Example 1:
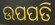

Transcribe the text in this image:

ଉପପତି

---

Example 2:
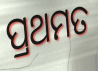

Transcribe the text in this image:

ପ୍ରଥମତ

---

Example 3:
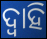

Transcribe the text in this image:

ଦ୍ଵାହି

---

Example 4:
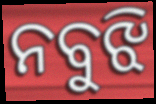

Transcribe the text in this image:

ନବୁଝି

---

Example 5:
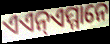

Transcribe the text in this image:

ଏଏନ୍ଏମ୍ମାନେ